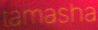
tamasha